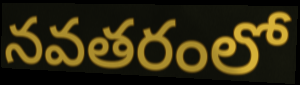
నవతరంలో